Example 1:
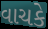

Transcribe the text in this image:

વાચકે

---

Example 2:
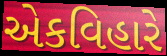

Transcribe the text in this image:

એકવિહારે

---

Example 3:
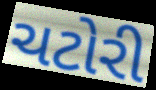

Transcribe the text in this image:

ચટોરી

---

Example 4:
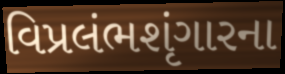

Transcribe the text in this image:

વિપ્રલંભશૃંગારના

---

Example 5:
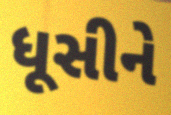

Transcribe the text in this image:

ધૂસીને